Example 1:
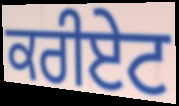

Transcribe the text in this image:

ਕਰੀਏਟ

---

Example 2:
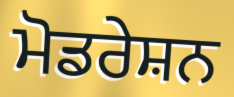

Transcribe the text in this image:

ਮੋਡਰੇਸ਼ਨ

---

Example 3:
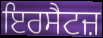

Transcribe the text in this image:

ਇਰਸੈਟਜ਼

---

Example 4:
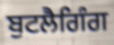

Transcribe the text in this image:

ਬੁਟਲੈਗਿੰਗ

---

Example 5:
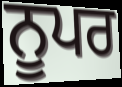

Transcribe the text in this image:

ਨੂਪਰ